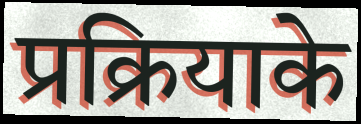
प्रक्रियाके